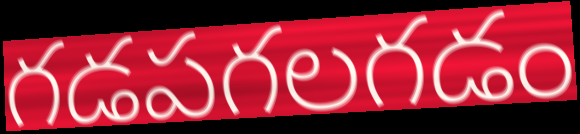
గడపగలగడం